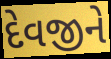
દેવજીને